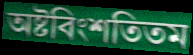
অষ্টবিংশতিতম